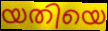
യതിയെ